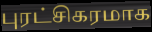
புரட்சிகரமாக